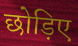
छोड़िए